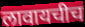
लावायचीच